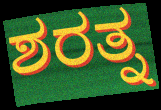
ಶರತ್ನ